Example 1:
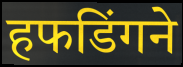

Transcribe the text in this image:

हफडिंगने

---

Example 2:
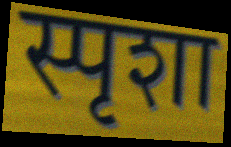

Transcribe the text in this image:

स्पृशा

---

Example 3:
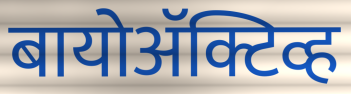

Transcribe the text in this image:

बायोॲक्टिव्ह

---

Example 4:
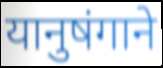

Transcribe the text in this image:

यानुषंगाने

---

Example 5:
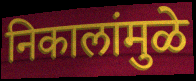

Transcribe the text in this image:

निकालांमुळे